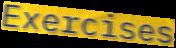
Exercises